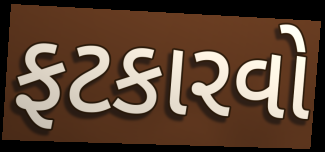
ફટકારવો